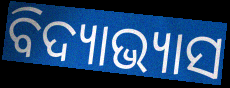
ବିଦ୍ୟାଭ୍ୟାସ